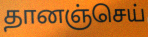
தானஞ்செய்